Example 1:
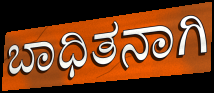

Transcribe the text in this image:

ಬಾಧಿತನಾಗಿ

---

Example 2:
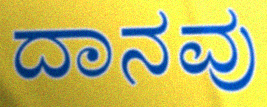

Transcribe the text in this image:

ದಾನವು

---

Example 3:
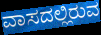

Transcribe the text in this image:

ವಾಸದಲ್ಲಿರುವ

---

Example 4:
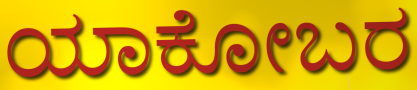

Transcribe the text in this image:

ಯಾಕೋಬರ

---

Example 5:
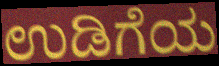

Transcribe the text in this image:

ಉಡಿಗೆಯ